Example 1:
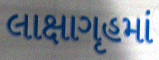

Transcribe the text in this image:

લાક્ષાગૃહમાં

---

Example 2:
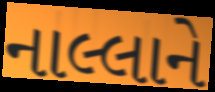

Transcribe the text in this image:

નાલ્લાને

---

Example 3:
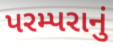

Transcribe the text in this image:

પરમ્પરાનું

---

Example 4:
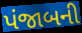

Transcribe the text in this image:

પંજાબની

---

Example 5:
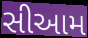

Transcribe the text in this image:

સીઆમ